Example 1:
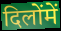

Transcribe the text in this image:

दिलोंमें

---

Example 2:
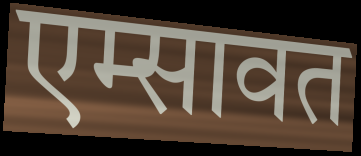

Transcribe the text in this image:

एम्सावत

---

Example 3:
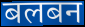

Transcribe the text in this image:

बलबन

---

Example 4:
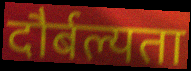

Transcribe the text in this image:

दौर्बल्यता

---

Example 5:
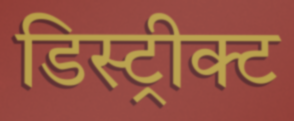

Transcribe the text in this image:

डिस्ट्रीक्ट